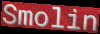
Smolin